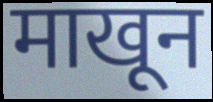
माखून